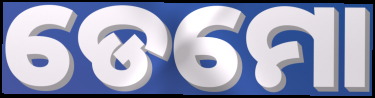
ଡେମୋ